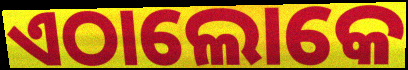
ଏଠାଲୋକେ